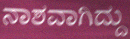
ನಾಶವಾಗಿದ್ದು